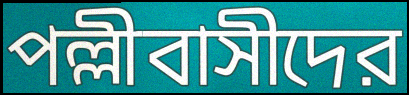
পল্লীবাসীদের